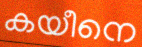
കയീനെ